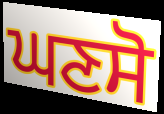
ਘਣਸੋ